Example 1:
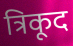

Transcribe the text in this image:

त्रिकूद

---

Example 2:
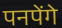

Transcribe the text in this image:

पनपेंगे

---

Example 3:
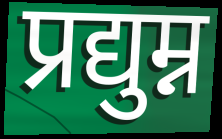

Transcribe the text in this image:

प्रद्युम्न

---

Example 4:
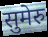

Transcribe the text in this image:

सुमेरु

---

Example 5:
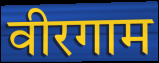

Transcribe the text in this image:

वीरगाम